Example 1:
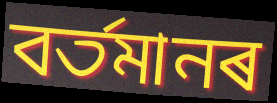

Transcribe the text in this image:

বৰ্তমানৰ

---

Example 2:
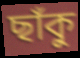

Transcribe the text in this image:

ছাঁকু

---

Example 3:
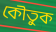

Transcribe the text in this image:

কৌতুক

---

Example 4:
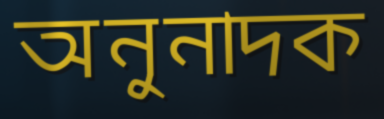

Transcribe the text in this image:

অনুনাদক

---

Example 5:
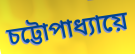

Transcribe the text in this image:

চট্টোপাধ্যায়ে